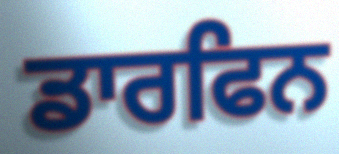
ਡਾਰਫਿਨ